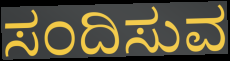
ಸಂದಿಸುವ